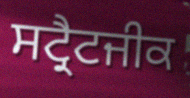
ਸਟ੍ਰੈਟਜੀਕ